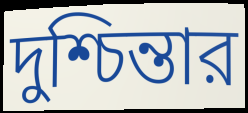
দুশ্চিন্তার